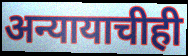
अन्यायाचीही